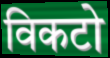
विकटो